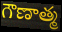
గౌణాత్మ